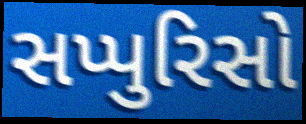
સપ્પુરિસો